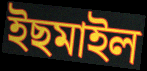
ইছমাইল